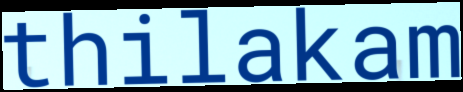
thilakam